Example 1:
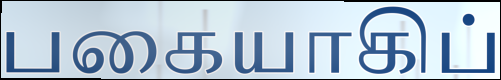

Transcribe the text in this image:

பகையாகிப்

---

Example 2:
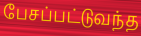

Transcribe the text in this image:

பேசப்பட்டுவந்த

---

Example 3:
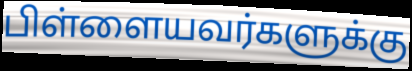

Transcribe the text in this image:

பிள்ளையவர்களுக்கு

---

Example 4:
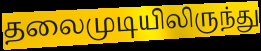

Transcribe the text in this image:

தலைமுடியிலிருந்து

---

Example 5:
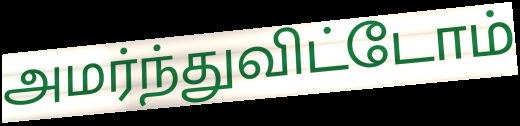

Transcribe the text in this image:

அமர்ந்துவிட்டோம்